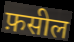
फ़सील